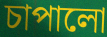
চাপালো